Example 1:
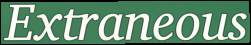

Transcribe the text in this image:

Extraneous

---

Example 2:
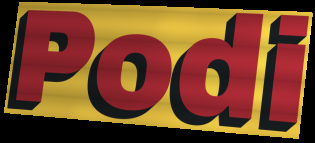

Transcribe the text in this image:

Podi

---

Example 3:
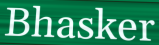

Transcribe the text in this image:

Bhasker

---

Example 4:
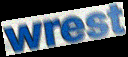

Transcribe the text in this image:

wrest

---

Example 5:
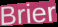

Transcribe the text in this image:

Brier